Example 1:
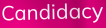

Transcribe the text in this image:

Candidacy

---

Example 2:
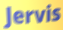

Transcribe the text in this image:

Jervis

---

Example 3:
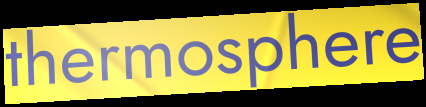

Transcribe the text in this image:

thermosphere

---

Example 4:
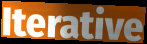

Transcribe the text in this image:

Iterative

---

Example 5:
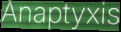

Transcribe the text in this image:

Anaptyxis